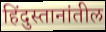
हिंदुस्तानांतील